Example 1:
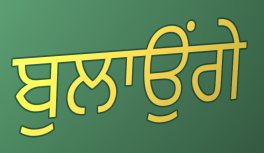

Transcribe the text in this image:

ਬੁਲਾਉਂਗੇ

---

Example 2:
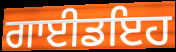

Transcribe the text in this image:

ਗਾਈਡਇਹ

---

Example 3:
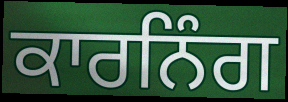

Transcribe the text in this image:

ਕਾਰਨਿੰਗ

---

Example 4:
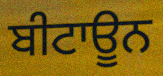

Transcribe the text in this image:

ਬੀਟਾਊਨ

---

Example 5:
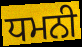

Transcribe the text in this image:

ਧਮਨੀ